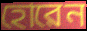
হোৱেন